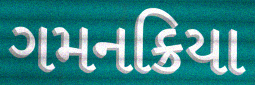
ગમનક્રિયા